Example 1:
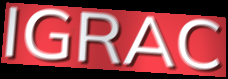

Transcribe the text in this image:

IGRAC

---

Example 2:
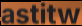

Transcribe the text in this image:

astitw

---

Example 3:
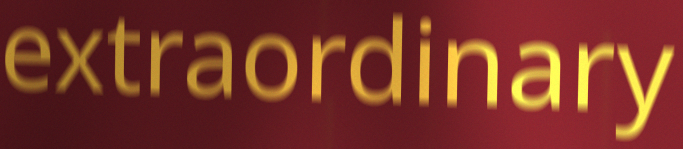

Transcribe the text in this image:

extraordinary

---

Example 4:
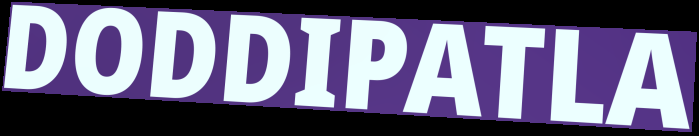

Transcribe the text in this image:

DODDIPATLA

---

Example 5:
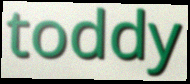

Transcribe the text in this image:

toddy